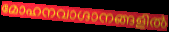
മോഹനവാഗ്ദാനങ്ങളിൽ